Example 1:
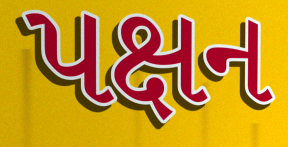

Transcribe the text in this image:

પક્ષન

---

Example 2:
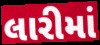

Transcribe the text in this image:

લારીમાં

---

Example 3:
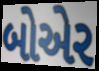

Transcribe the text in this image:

બોએર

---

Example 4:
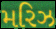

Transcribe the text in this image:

મરિઝ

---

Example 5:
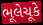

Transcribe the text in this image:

ભૂલેચૂકે